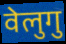
वेलुगु